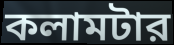
কলামটার